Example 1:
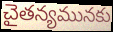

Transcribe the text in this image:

చైతన్యమునకు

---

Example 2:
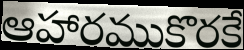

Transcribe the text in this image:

ఆహారముకొరకే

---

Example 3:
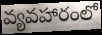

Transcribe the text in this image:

వ్యవహారంలో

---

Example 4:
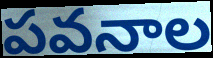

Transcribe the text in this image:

పవనాల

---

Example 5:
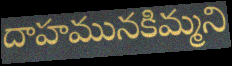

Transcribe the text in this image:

దాహమునకిమ్మని